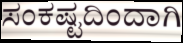
ಸಂಕಷ್ಟದಿಂದಾಗಿ